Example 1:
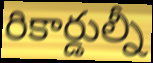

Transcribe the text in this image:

రికార్డుల్నీ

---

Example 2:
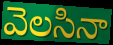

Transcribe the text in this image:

వెలసినా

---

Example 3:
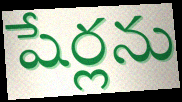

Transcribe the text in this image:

షేర్లను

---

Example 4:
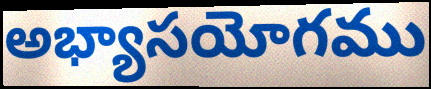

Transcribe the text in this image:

అభ్యాసయోగము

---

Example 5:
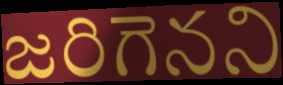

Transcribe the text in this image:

జరిగెనని